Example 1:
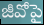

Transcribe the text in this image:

జీవోపై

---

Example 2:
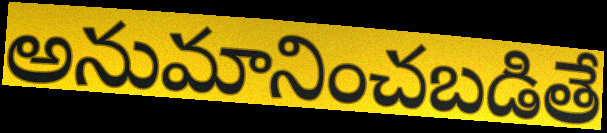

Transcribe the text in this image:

అనుమానించబడితే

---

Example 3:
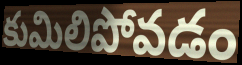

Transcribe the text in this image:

కుమిలిపోవడం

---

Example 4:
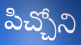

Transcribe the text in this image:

పిచ్చోని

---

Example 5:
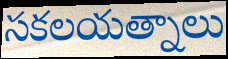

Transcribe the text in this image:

సకలయత్నాలు